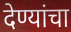
देण्यांचा